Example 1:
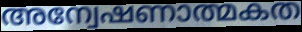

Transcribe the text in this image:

അന്വേഷണാത്മകത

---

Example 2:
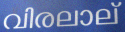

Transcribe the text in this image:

വിരലാല്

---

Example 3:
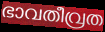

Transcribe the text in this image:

ഭാവതീവ്രത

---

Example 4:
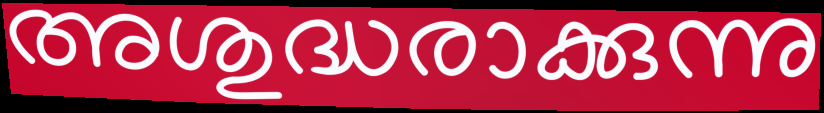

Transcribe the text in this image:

അശുദ്ധരാക്കുന്നു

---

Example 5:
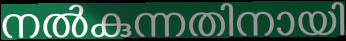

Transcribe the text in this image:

നൽകുന്നതിനായി